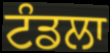
ਟੰਡਲਾ